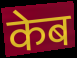
केब